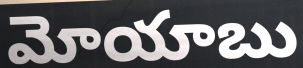
మోయాబు